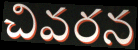
చివరన